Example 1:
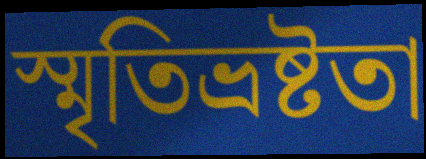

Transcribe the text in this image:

স্মৃতিভ্রষ্টতা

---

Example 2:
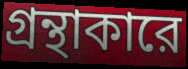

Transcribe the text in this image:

গ্রন্থাকারে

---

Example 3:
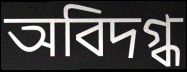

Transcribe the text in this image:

অবিদগ্ধ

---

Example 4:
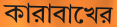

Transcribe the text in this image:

কারাবাখের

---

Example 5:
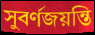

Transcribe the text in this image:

সুবর্ণজয়ন্তি